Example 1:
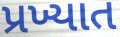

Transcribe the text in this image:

પ્રખ્યાત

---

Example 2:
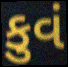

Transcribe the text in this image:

કુવં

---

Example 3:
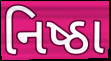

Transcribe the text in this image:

નિષ્ઠા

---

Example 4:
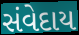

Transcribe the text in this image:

સંવેદાય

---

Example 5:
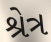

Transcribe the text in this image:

શ્રેત્ર